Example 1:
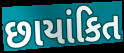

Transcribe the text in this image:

છાયાંકિત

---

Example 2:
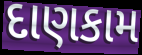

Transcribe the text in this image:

દાણકામ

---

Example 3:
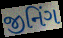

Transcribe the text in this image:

જીનિંગ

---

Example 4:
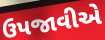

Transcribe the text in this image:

ઉપજાવીએ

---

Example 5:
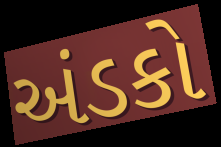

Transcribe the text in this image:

અંડકો